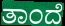
ತಾಂದೆ